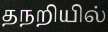
தநறியில்